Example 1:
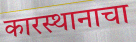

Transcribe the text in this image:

कारस्थानाचा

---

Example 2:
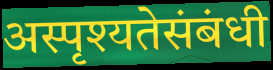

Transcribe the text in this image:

अस्पृश्यतेसंबंधी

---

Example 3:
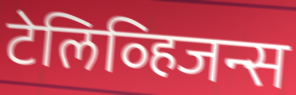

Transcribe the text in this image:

टेलिव्हिजन्स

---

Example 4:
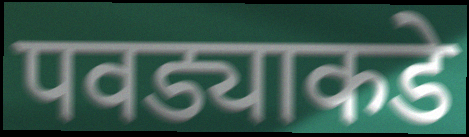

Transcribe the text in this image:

पवड्याकडे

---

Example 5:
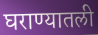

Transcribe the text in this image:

घराण्यातली